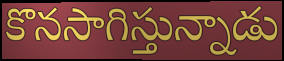
కొనసాగిస్తున్నాడు